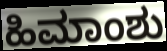
ಹಿಮಾಂಶು